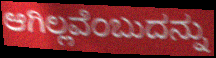
ಆಗಿಲ್ಲವೆಂಬುದನ್ನು